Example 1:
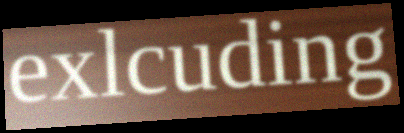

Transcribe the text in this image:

exlcuding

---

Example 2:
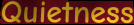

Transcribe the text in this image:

Quietness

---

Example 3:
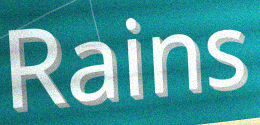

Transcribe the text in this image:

Rains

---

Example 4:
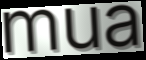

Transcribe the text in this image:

mua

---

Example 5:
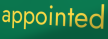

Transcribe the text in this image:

appointed